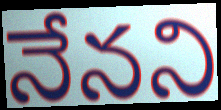
నేనని